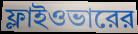
ফ্লাইওভারের